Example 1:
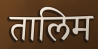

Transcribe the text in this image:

तालिम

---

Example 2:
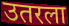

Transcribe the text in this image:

उतरला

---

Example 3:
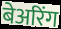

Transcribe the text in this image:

बेअरिंग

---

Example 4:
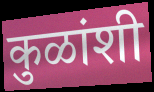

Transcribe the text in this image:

कुळांशी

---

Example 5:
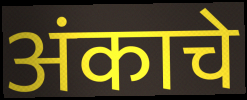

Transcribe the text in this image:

अंकाचे